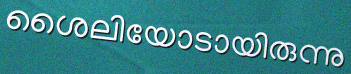
ശൈലിയോടായിരുന്നു